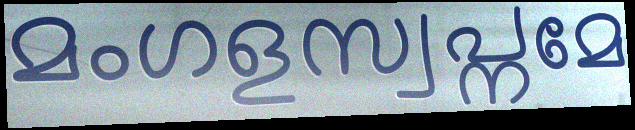
മംഗളസ്വപ്നമേ